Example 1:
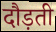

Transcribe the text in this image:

दौड़ती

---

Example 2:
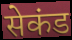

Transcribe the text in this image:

सेकंड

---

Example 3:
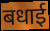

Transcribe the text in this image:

बधाई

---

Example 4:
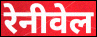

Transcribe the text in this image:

रेनीवेल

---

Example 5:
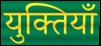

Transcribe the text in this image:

युक्तियाँ